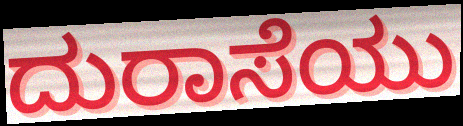
ದುರಾಸೆಯು